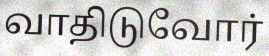
வாதிடுவோர்